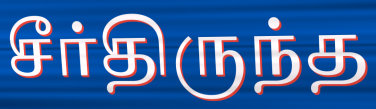
சீர்திருந்த